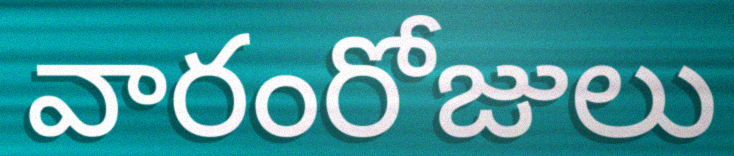
వారంరోజులు